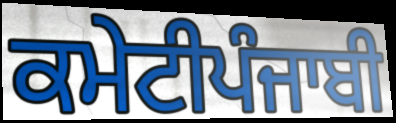
ਕਮੇਟੀਪੰਜਾਬੀ